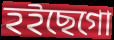
হইছেগো